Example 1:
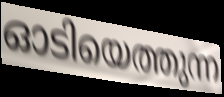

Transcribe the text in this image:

ഓടിയെത്തുന്ന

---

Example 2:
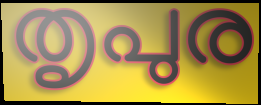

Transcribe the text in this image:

തൃപുര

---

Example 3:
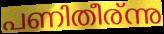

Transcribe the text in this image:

പണിതീര്ന്നു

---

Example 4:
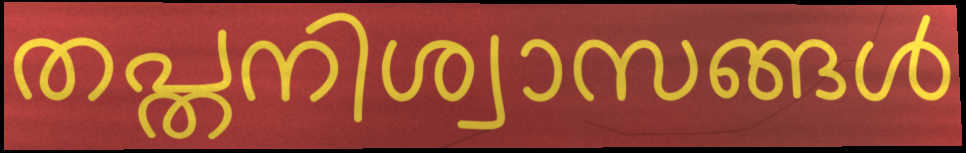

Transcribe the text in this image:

തപ്തനിശ്വാസങ്ങൾ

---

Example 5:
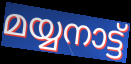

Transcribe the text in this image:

മയ്യനാട്ട്